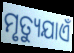
ମୃତ୍ୟୁଯାଏଁ